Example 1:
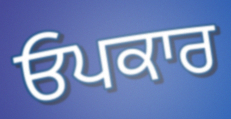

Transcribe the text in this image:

ਓਪਕਾਰ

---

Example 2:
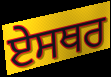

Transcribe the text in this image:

ਏਸਥਰ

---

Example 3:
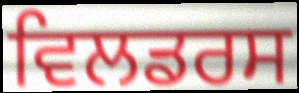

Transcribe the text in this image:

ਵਿਲਡਰਸ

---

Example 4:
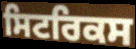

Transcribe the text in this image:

ਸਿਟਰਿਕਸ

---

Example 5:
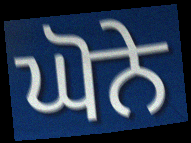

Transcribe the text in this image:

ਘੋਨੇ